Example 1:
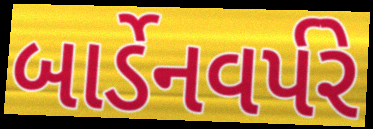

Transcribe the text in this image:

બાર્ડેનવર્પરે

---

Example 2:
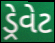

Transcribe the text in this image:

ડ્રેવેટ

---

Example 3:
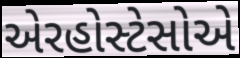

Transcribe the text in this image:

એરહોસ્ટેસોએ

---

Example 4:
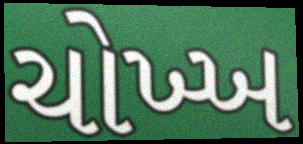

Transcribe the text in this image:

ચોખ્ખ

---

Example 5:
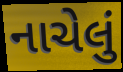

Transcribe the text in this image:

નાચેલું